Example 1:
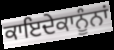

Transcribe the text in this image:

ਕਾਇਦੇਕਾਨੂੰਨਾਂ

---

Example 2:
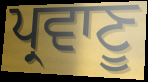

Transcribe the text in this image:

ਪ੍ਰਵਾਣੂ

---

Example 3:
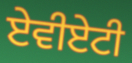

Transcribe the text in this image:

ਏਵੀਏਟੀ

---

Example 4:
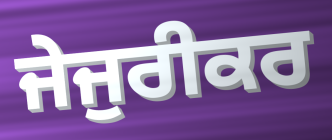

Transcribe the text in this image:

ਜੇਜੁਰੀਕਰ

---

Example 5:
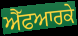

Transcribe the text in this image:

ਐੱਫਆਰਕੇ